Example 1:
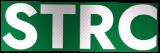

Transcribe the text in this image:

STRC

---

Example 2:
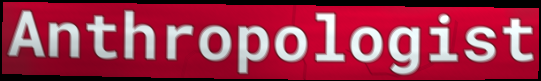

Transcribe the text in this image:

Anthropologist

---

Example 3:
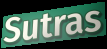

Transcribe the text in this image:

Sutras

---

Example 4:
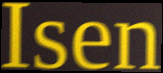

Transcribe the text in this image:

Isen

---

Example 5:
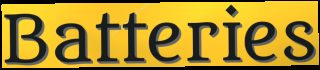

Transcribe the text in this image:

Batteries